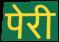
पेरी